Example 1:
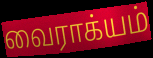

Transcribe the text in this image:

வைராக்யம்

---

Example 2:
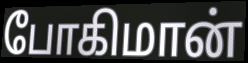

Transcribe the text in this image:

போகிமான்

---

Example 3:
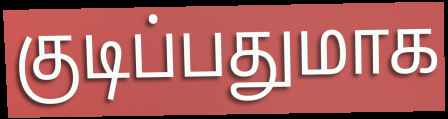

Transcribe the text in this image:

குடிப்பதுமாக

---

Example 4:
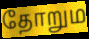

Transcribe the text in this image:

தோறும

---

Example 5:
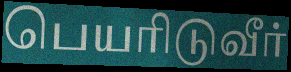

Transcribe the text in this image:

பெயரிடுவீர்